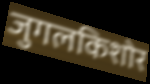
जुगलकिशोर